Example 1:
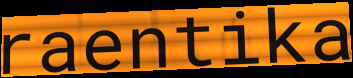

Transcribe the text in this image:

raentika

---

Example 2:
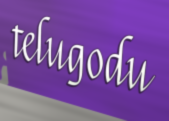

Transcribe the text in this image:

telugodu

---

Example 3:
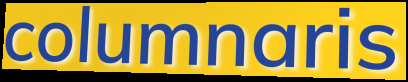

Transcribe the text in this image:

columnaris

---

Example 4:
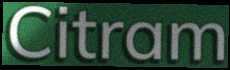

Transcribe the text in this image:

Citram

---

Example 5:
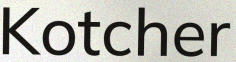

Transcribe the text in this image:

Kotcher